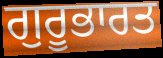
ਗੁਰੂਭਾਰਤ